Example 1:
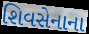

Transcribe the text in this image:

શિવસેનાના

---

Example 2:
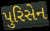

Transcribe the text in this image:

પુરિસેન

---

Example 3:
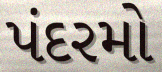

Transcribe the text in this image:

પંદરમો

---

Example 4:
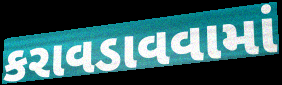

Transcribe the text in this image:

કરાવડાવવામાં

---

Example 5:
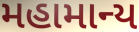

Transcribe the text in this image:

મહામાન્ય